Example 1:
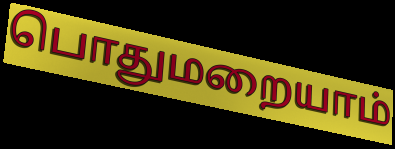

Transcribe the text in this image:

பொதுமறையாம்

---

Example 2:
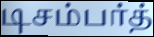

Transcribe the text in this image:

டிசம்பர்த்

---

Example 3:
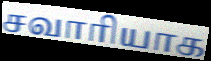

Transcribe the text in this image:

சவாரியாக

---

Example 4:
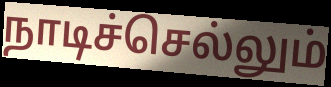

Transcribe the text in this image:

நாடிச்செல்லும்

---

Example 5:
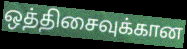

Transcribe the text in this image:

ஒத்திசைவுக்கான